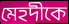
মেহদীকে